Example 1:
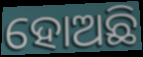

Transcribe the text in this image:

ହୋଅଛି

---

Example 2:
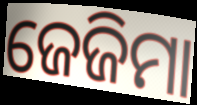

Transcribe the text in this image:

ଜେଜିମା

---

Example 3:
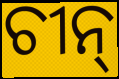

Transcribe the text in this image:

ଚୀନ୍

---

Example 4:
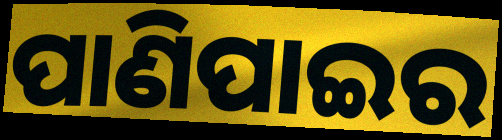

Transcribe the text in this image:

ପାଣିପାଇର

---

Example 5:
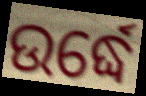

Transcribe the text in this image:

ଉର୍ଦ୍ଧେ